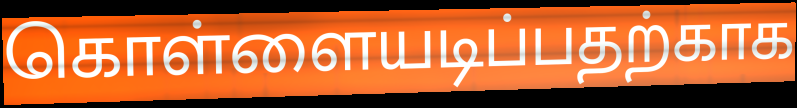
கொள்ளையடிப்பதற்காக